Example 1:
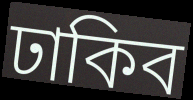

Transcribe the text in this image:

ঢাকিব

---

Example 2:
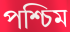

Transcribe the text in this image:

পশ্চিম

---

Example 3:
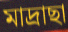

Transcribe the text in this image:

মাদ্ৰাছা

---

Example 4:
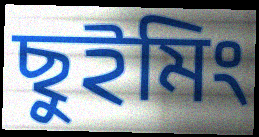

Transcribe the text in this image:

ছুইমিং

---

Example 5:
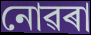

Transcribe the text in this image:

নোৱৰা